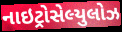
નાઇટ્રોસેલ્યુલોઝ